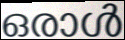
ഒരാൾ